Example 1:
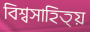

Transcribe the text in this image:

বিশ্বসাহিত্য়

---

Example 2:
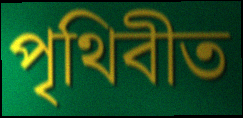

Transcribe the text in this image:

পৃথিবীত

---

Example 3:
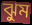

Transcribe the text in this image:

ঝুম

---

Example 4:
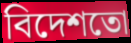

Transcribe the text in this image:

বিদেশতো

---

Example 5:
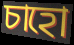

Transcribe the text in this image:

চাহো